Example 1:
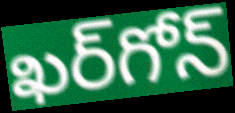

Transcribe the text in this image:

ఖర్‌గోన్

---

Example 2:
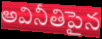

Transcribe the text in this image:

అవినీతిపైన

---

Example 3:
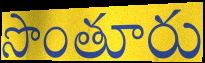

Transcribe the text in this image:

సొంతూరు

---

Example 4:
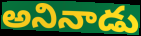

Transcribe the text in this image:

అనినాడు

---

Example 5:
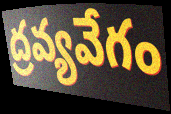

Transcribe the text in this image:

ద్రవ్యవేగం